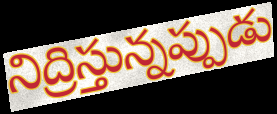
నిద్రిస్తున్నప్పుడు